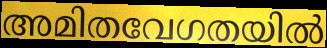
അമിതവേഗതയിൽ